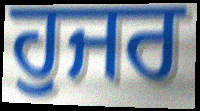
ਹੁਜਰ